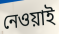
নেওয়াই